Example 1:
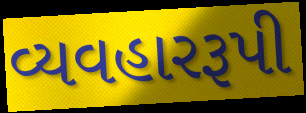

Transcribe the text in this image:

વ્યવહારરૂપી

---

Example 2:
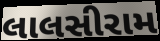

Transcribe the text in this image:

લાલસીરામ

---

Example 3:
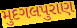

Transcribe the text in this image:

મુદગલપુરાણ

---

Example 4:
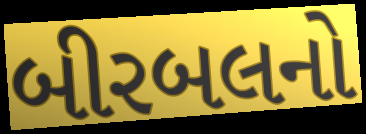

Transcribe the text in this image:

બીરબલનો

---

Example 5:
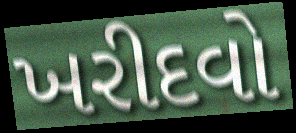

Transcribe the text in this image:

ખરીદવો